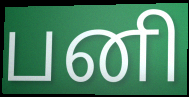
பனி